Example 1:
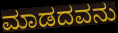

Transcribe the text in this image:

ಮಾಡದವನು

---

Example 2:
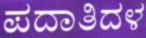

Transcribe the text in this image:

ಪದಾತಿದಳ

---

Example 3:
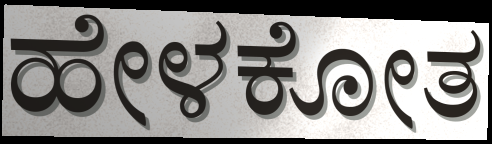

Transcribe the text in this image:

ಹೇಳಕೋತ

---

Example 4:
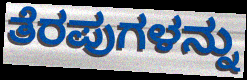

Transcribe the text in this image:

ತೆರಪುಗಳನ್ನು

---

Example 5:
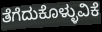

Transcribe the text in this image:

ತೆಗೆದುಕೊಳ್ಳುವಿಕೆ